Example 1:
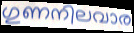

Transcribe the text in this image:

ഗുണനിലവാര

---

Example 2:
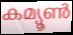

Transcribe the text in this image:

കമ്യൂൺ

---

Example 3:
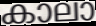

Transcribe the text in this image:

കാലാ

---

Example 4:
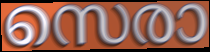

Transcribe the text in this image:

സെരാ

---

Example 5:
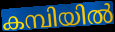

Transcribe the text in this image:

കമ്പിയിൽ